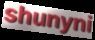
shunyni